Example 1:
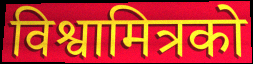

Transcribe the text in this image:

विश्वामित्रको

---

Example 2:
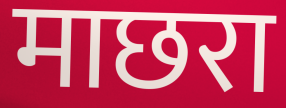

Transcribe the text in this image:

माछरा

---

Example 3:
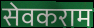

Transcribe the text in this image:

सेवकराम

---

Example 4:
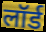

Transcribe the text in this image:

लॉर्ड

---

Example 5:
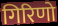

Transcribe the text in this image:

गिरिणो